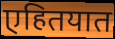
एहितयात